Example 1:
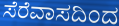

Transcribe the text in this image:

ಸೆರೆವಾಸದಿಂದ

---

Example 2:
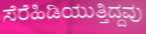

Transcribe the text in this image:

ಸೆರೆಹಿಡಿಯುತ್ತಿದ್ದವು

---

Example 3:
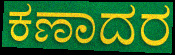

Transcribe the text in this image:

ಕಣಾದರ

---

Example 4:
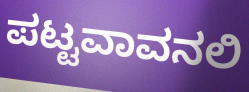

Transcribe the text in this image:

ಪಟ್ಟವಾವನಲಿ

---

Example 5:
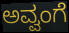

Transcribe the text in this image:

ಅವ್ವಂಗೆ